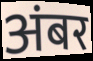
अंबर